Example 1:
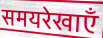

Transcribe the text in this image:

समयरेखाएँ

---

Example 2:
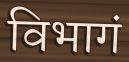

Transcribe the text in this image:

विभागं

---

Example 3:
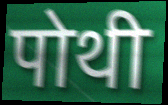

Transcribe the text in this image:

पोथी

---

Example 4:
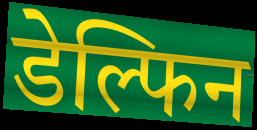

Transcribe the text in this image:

डेल्फिन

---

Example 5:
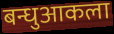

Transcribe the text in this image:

बन्धुआकला